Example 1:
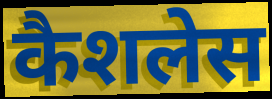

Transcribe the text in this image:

कैशलेस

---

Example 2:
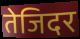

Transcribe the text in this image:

तेजिदर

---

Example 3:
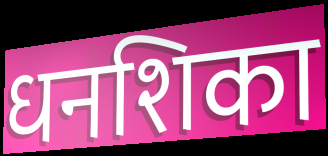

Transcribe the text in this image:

धनशिका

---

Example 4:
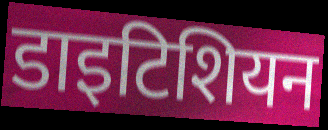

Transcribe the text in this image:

डाइटिशियन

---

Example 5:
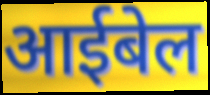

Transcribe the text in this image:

आईबेल